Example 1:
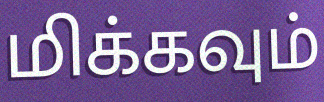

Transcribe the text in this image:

மிக்கவும்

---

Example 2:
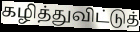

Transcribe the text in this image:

கழித்துவிட்டுத்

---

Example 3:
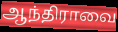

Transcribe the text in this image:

ஆந்திராவை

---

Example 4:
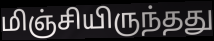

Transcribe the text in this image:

மிஞ்சியிருந்தது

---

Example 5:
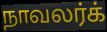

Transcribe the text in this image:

நாவலர்க்